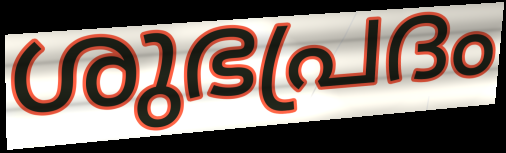
ശുഭപ്രദം